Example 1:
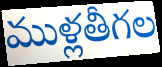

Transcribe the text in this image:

ముళ్లతీగల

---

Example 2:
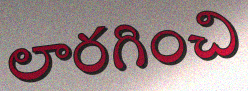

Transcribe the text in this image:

లారగించి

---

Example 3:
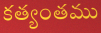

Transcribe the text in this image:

కత్యంతము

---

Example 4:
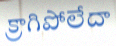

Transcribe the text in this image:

క్రాగిపోలేదా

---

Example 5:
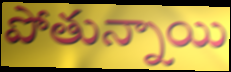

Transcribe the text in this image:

పోతున్నాయి